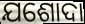
ଯଶୋଦା